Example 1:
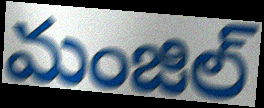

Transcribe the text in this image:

మంజిల్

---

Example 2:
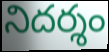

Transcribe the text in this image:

నిదర్శం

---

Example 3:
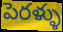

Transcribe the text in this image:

పెరళ్ళు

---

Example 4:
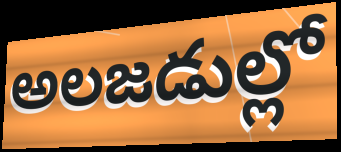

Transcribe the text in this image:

అలజడుల్లో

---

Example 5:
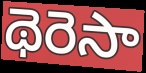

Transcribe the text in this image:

థెరెసా